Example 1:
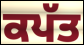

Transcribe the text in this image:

ਕਪੱਤ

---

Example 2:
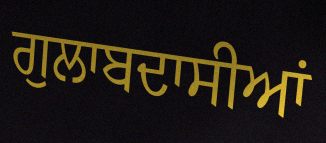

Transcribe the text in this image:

ਗੁਲਾਬਦਾਸੀਆਂ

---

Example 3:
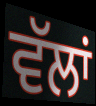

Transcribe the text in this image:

ਵੱਲਾਂ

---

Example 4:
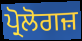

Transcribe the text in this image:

ਪ੍ਰੋਲੋਗਜ਼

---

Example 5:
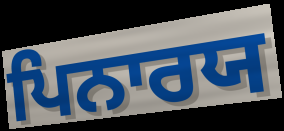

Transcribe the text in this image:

ਪਿਨਾਰਯ